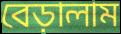
বেড়ালাম